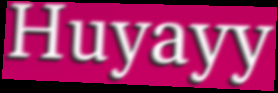
Huyayy